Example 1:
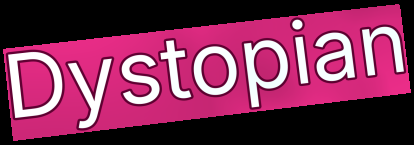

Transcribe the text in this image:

Dystopian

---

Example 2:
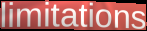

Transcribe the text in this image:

limitations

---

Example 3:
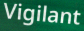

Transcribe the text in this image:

Vigilant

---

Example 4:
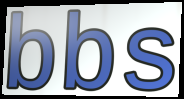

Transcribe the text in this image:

bbs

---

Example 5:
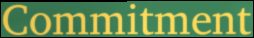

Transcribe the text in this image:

Commitment